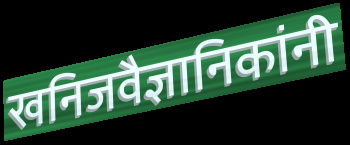
खनिजवैज्ञानिकांनी